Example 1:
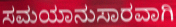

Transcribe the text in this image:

ಸಮಯಾನುಸಾರವಾಗಿ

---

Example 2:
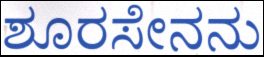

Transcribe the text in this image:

ಶೂರಸೇನನು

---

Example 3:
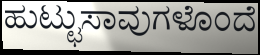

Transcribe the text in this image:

ಹುಟ್ಟುಸಾವುಗಳೊಂದೆ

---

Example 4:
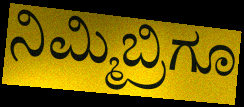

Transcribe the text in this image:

ನಿಮ್ಮಿಬ್ರಿಗೂ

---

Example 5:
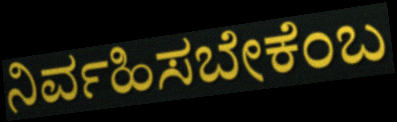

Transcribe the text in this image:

ನಿರ್ವಹಿಸಬೇಕೆಂಬ